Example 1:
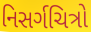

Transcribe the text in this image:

નિસર્ગચિત્રો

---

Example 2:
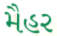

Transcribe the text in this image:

મૈહર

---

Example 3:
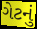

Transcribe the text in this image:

ગેટનું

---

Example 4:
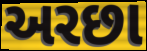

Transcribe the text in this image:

અરછા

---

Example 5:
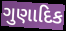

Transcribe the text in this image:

ગુણાદિક